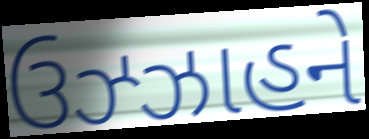
ઉઝ્ઝાહને